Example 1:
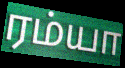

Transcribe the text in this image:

ரம்யா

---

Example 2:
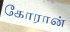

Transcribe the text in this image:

கோரான்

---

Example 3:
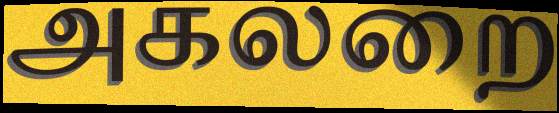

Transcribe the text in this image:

அகலறை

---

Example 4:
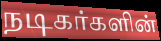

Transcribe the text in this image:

நடிகர்களின்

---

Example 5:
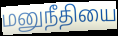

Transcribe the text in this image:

மனுநீதியை